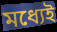
মধ্যেই